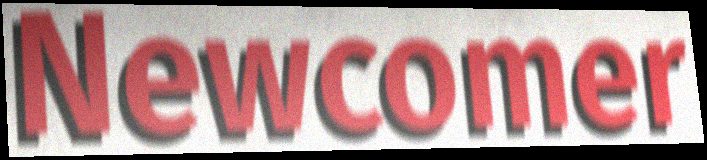
Newcomer